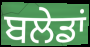
ਬਲੇਡਾਂ